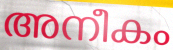
അനീകം